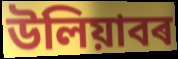
উলিয়াবৰ